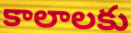
కాలాలకు